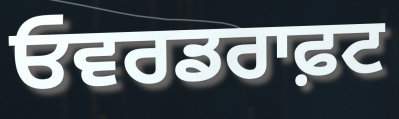
ਓਵਰਡਰਾਫ਼ਟ